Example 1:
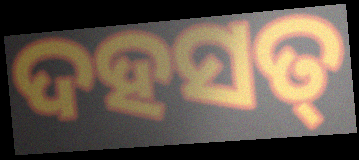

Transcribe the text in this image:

ଦହସତ୍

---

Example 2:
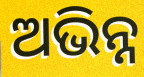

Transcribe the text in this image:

ଅଭିନ୍ନ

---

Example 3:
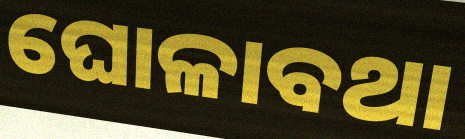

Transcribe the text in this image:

ଘୋଳାବଥା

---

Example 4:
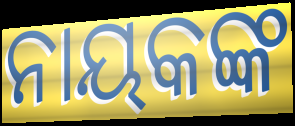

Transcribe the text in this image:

ନାୟକଙ୍କ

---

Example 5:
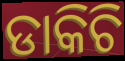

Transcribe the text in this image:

ଡାକିଚି